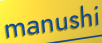
manushi